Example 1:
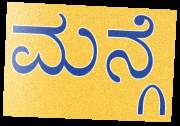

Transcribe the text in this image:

ಮನ್ಗೆ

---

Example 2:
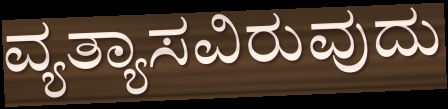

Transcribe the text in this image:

ವ್ಯತ್ಯಾಸವಿರುವುದು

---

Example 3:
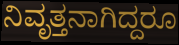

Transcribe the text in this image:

ನಿವೃತ್ತನಾಗಿದ್ದರೂ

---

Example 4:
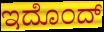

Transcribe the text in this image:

ಇದೊಂದ್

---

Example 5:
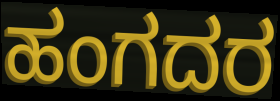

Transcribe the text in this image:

ಹಂಗದರ